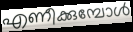
എണീക്കുമ്പോൾ